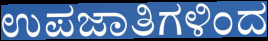
ಉಪಜಾತಿಗಳಿಂದ